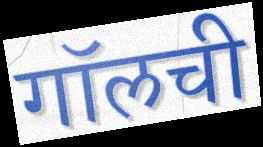
गॉलची